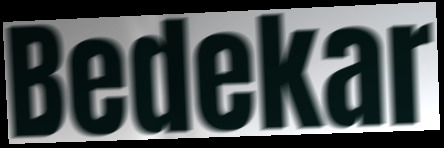
Bedekar